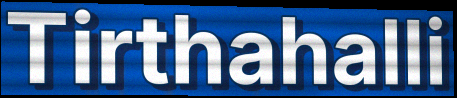
Tirthahalli